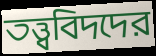
তত্ত্ববিদদের